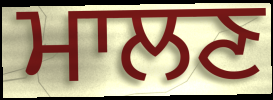
ਮਾਲਣ